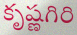
కృష్ణగిరి